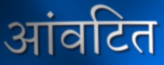
आंवटित